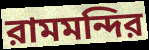
রামমন্দির